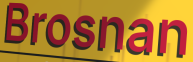
Brosnan